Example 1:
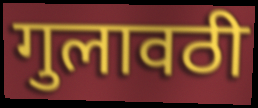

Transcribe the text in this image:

गुलावठी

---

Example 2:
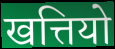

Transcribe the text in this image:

खत्तियो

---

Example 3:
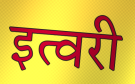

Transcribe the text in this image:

इत्वरी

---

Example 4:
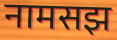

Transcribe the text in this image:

नामसझ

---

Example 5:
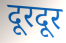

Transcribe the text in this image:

दूरदूर